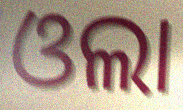
ଓଲା